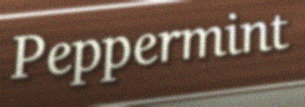
Peppermint